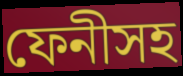
ফেনীসহ